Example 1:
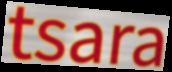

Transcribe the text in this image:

tsara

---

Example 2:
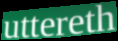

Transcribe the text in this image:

uttereth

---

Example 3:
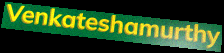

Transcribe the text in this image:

Venkateshamurthy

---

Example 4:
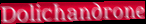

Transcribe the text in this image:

Dolichandrone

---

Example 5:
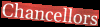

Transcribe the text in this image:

Chancellors